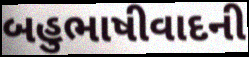
બહુભાષીવાદની